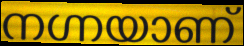
നഗ്നയാണ്